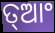
ତ୍ଆଂ